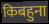
किबहुना